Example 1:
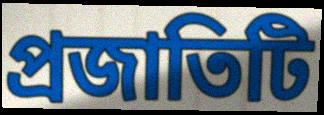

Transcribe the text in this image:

প্রজাতিটি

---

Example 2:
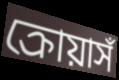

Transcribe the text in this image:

ক্রোয়াসঁ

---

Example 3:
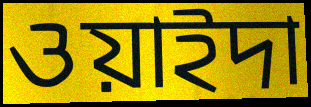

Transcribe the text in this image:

ওয়াইদা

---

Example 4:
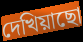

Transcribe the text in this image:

দেখিয়াছো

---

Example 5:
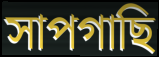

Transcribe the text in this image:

সাপগাছি